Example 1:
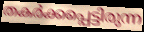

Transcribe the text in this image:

തകർക്കപ്പെട്ടിരുന്ന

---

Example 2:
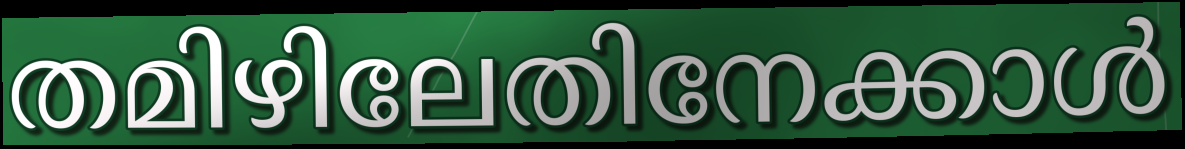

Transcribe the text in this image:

തമിഴിലേതിനേക്കാൾ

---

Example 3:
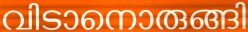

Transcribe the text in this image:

വിടാനൊരുങ്ങി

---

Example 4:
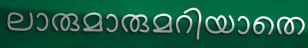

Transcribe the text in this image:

ലാരുമാരുമറിയാതെ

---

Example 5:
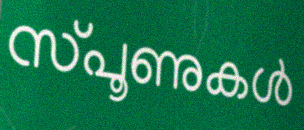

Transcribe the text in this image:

സ്പൂണുകൾ